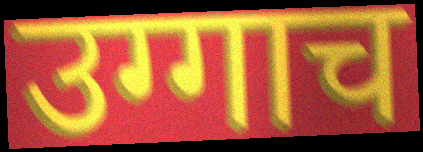
उग्गाच